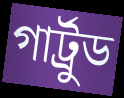
গার্ট্রুড